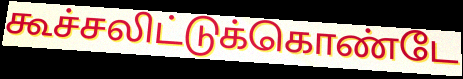
கூச்சலிட்டுக்கொண்டே